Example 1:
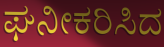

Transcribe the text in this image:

ಘನೀಕರಿಸಿದ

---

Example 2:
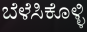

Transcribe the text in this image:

ಬೆಳೆಸಿಕೊಳ್ಳಿ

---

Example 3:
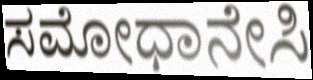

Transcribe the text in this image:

ಸಮೋಧಾನೇಸಿ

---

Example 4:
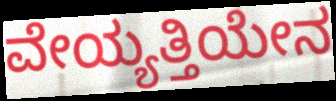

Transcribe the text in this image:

ವೇಯ್ಯತ್ತಿಯೇನ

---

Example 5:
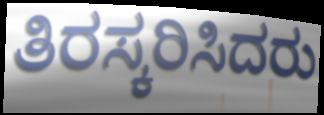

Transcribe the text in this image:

ತಿರಸ್ಕರಿಸಿದರು